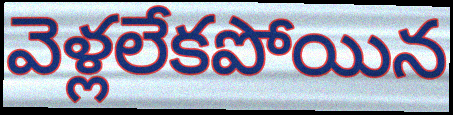
వెళ్లలేకపోయిన